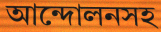
আন্দোলনসহ